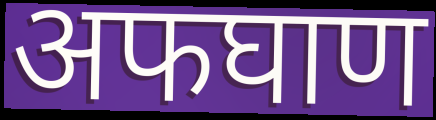
अफघाण